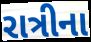
રાત્રીના